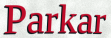
Parkar